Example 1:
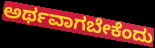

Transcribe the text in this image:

ಅರ್ಥವಾಗಬೇಕೆಂದು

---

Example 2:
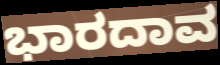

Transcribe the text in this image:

ಭಾರದಾವ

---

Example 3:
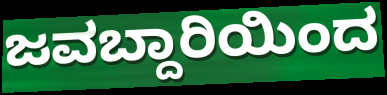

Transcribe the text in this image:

ಜವಬ್ದಾರಿಯಿಂದ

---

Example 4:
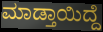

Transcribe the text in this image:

ಮಾಡ್ತಾಯಿದ್ದೆ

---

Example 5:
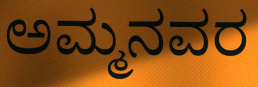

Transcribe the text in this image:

ಅಮ್ಮನವರ